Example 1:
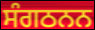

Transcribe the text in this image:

ਸੰਗਠਨਨ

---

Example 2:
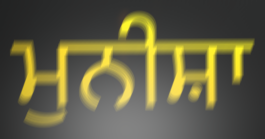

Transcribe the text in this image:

ਮੁਨੀਸ਼ਾ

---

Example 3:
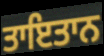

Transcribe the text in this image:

ਤਾਇਤਾਨ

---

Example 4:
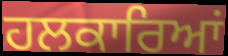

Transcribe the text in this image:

ਹਲਕਾਰਿਆਂ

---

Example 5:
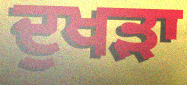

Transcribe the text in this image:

ਦੁਖੜਾ